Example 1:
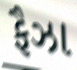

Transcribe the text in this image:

ફૈઝા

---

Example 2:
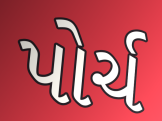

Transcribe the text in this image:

પોર્ચ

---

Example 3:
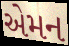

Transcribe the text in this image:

એમન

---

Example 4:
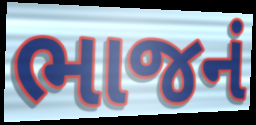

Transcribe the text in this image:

ભાજનં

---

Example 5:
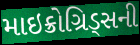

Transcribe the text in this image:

માઇક્રોગ્રિડ્સની